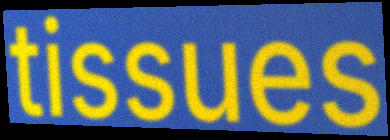
tissues